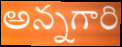
అన్నగారి